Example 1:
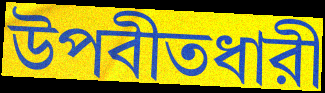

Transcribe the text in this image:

উপবীতধারী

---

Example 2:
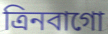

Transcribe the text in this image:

ত্রিনবাগো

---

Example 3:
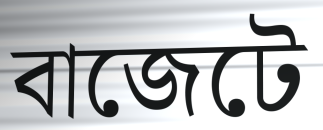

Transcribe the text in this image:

বাজেটে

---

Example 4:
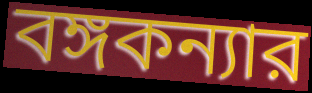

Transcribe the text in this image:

বঙ্গকন্যার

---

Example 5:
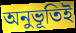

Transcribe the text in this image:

অনুভূতিই